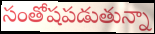
సంతోషపడుతున్నా